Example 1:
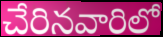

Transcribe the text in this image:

చేరినవారిలో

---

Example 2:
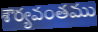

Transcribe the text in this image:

శౌర్యవంతము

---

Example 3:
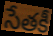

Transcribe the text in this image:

సేతకీ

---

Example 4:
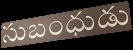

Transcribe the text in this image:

సుబంధుడు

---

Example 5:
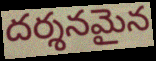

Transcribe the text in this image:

దర్శనమైన